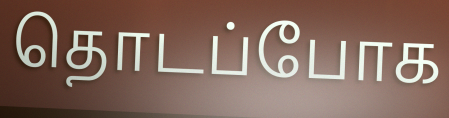
தொடப்போக